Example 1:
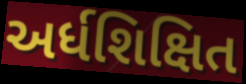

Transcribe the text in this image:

અર્ધશિક્ષિત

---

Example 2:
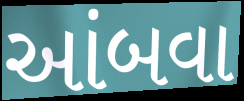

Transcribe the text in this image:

આંબવા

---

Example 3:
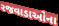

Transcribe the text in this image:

રજવાડાઓના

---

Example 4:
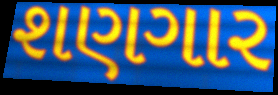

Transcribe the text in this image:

શણગાર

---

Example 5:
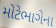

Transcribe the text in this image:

મોટેભાગેના